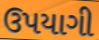
ઉપયાગી